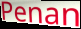
Penan